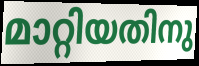
മാറ്റിയതിനു